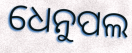
ଧେନୁପଲ